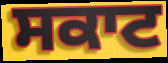
ਸਕਾਟ